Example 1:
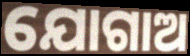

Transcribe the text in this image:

ଯୋଗାଅ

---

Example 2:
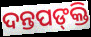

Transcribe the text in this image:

ଦନ୍ତପଙ୍‍କ୍ତି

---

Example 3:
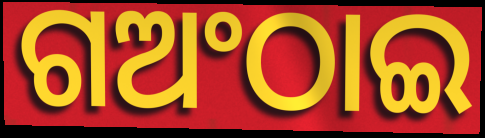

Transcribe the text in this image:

ଗଅଂଠାଇ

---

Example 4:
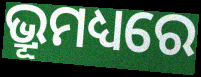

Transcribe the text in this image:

ଭ୍ରୂମଧ୍ୟରେ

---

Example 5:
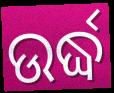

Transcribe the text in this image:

ଉର୍ଦ୍ଧ